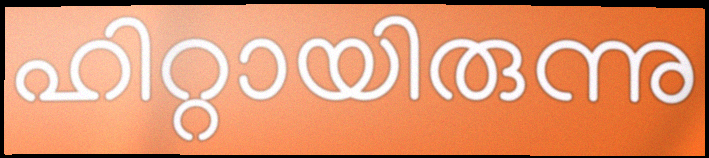
ഹിറ്റായിരുന്നു